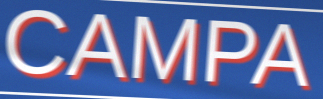
CAMPA